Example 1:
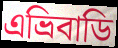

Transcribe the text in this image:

এভ্ৰিবাডি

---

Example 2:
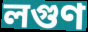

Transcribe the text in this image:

লগুণ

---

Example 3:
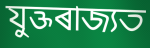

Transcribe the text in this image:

যুক্তৰাজ্যত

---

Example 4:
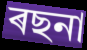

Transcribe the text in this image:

ৰছনা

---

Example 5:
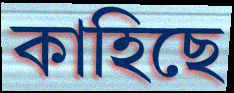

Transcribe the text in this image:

কাহিছে